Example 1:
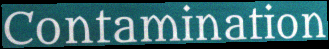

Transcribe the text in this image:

Contamination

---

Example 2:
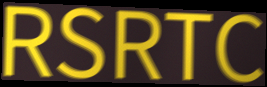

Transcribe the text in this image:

RSRTC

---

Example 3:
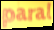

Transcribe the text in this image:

paral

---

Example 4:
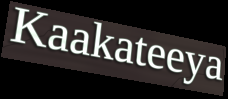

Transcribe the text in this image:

Kaakateeya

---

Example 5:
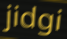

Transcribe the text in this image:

jidgi